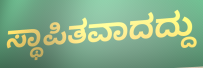
ಸ್ಥಾಪಿತವಾದದ್ದು